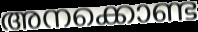
അനക്കൊണ്ട